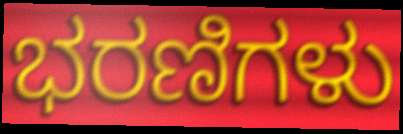
ಭರಣಿಗಳು